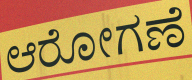
ಆರೋಗಣೆ